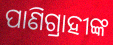
ପାଣିଗ୍ରାହୀଙ୍କ